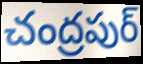
చంద్రపుర్